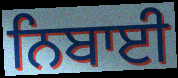
ਨਿਬਾਈ